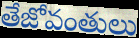
తేజోవంతులు